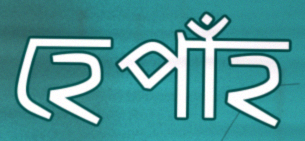
হেপাঁহ